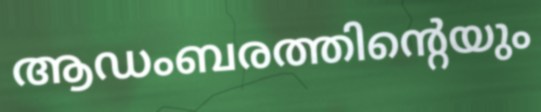
ആഡംബരത്തിന്റെയും